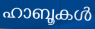
ഹാബൂകൾ